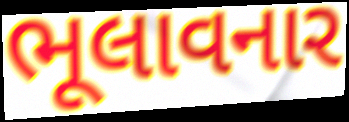
ભૂલાવનાર